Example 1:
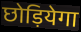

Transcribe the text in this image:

छोड़ियेगा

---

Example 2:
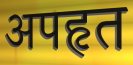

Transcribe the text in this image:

अपहृत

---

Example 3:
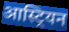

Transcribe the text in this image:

आस्ट्रियन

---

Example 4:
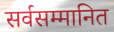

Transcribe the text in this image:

सर्वसम्मानित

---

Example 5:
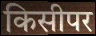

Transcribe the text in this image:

किसीपर